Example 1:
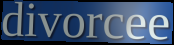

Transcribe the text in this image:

divorcee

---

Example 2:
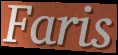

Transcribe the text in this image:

Faris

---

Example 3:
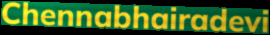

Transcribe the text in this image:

Chennabhairadevi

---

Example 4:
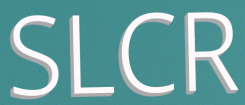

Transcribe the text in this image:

SLCR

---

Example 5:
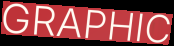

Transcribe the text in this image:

GRAPHIC